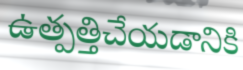
ఉత్పత్తిచేయడానికి